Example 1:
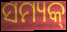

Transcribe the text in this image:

ସମ୍ୟକ୍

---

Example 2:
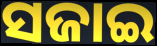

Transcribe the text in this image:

ସଜାଇ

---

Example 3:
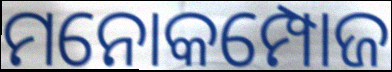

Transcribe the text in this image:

ମନୋକମ୍ପୋଜ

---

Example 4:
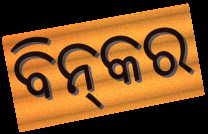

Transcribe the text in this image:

ବିନ୍‌କର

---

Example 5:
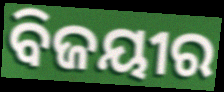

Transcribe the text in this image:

ବିଜୟୀର